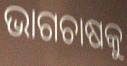
ଭାଗଚାଷକୁ